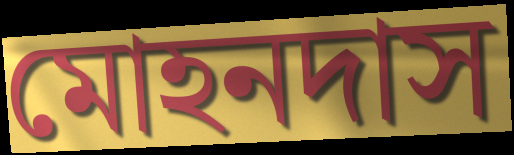
মোহনদাস